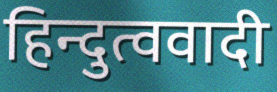
हिन्दुत्ववादी